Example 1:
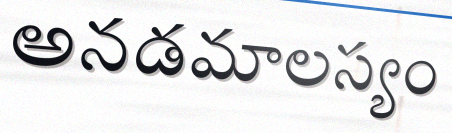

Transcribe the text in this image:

అనడమాలస్యం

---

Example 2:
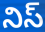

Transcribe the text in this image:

నిస్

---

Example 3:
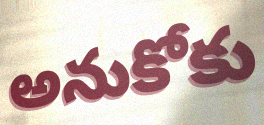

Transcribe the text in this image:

అనుకోకు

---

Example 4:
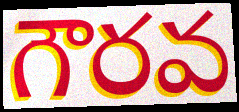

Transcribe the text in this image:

గౌరవ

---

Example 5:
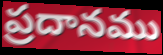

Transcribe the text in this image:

ప్రదానము